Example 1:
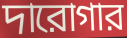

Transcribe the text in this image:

দারোগার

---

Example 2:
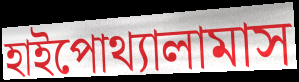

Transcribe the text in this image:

হাইপোথ্যালামাস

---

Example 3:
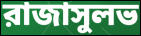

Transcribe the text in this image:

রাজাসুলভ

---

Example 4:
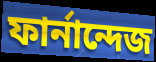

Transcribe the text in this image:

ফার্নান্দেজ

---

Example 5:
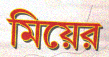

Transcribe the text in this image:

মিয়ের